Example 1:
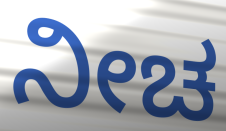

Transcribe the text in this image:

ನೀಚ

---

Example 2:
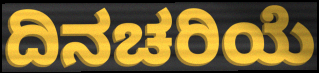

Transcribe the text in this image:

ದಿನಚರಿಯೆ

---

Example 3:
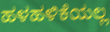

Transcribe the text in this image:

ಹಳಹಳಿಕೆಯಲ್ಲ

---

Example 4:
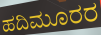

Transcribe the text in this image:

ಹದಿಮೂರರ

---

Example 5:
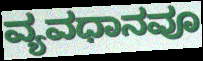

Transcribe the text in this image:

ವ್ಯವಧಾನವೂ